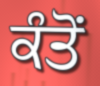
ਕੰਤੋਂ